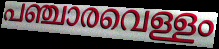
പഞ്ചാരവെള്ളം